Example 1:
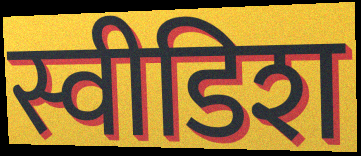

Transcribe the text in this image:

स्वीडिश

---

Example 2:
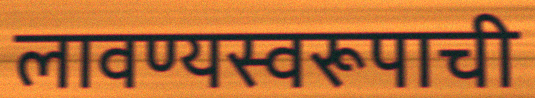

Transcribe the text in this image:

लावण्यस्वरूपाची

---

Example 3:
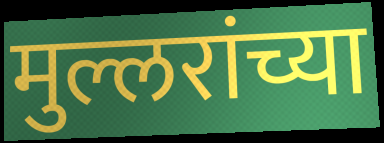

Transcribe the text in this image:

मुल्लरांच्या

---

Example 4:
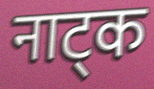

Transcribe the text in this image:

नाट्क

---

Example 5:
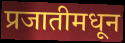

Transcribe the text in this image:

प्रजातीमधून